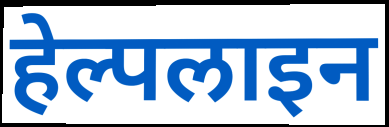
हेल्पलाइन